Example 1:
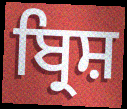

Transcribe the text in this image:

ਬ੍ਰਿਸ਼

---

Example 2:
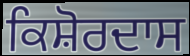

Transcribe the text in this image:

ਕਿਸ਼ੋਰਦਾਸ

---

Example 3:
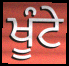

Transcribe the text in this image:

ਖੂੰਟੇ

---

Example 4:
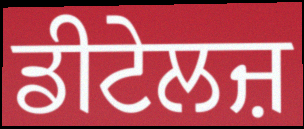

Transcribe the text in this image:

ਡੀਟੇਲਜ਼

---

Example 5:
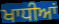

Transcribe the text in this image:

ਖਾਧੀਆਂ